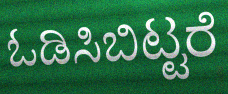
ಓಡಿಸಿಬಿಟ್ಟರೆ